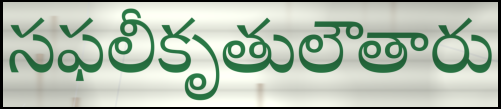
సఫలీకృతులౌతారు